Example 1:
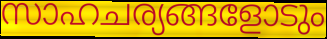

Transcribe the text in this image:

സാഹചര്യങ്ങളോടും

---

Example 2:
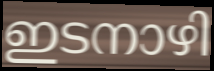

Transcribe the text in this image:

ഇടനാഴി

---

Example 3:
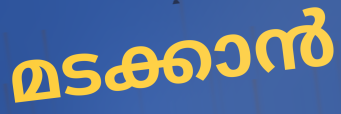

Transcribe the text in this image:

മടക്കാൻ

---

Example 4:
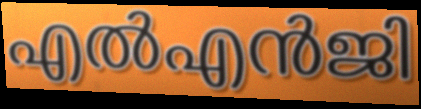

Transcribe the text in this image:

എൽഎൻജി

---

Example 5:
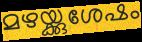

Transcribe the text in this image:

മഴയ്ക്കുശേഷം